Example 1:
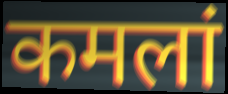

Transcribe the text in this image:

कमलां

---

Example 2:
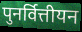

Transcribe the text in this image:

पुनर्वित्तीयन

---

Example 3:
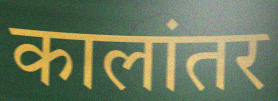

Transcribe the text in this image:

कालांतर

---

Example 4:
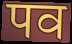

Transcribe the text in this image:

पव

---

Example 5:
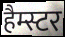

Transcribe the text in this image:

हैम्स्टर